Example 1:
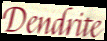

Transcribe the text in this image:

Dendrite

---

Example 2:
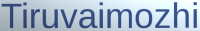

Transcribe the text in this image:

Tiruvaimozhi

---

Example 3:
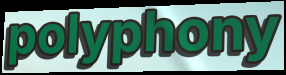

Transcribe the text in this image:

polyphony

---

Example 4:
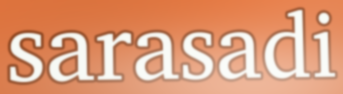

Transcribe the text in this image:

sarasadi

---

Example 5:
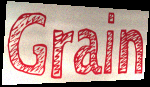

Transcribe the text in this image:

Grain